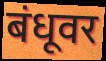
बंधूवर